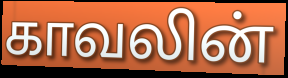
காவலின்